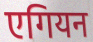
एगियन